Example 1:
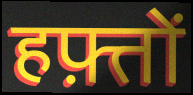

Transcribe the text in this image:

हफ़्तों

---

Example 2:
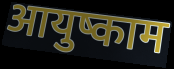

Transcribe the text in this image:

आयुष्काम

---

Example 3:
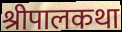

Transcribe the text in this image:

श्रीपालकथा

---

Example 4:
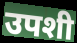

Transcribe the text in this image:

उपशी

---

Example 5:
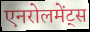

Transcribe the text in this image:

एनरोलमेंट्स